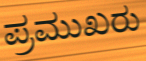
ಪ್ರಮುಖರು